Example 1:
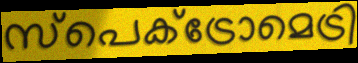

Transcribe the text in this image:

സ്പെക്ട്രോമെട്രി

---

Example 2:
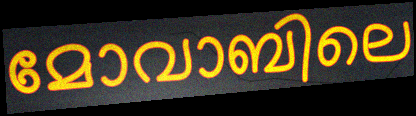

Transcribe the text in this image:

മോവാബിലെ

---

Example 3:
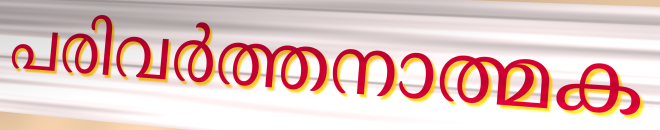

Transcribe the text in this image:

പരിവർത്തനാത്മക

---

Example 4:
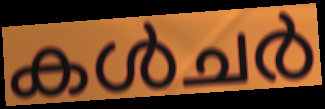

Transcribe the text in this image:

കൾചർ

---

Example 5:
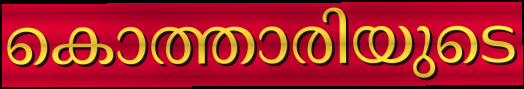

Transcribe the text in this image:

കൊത്താരിയുടെ